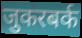
जुकरबर्क